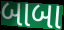
બાબા